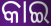
କାଇ